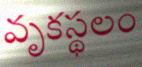
వృకస్థలం